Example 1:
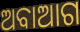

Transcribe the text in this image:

ଅବାଆଗ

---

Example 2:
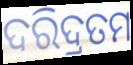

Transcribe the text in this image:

ଦରିଦ୍ରତମ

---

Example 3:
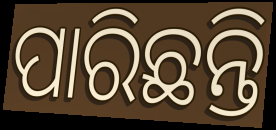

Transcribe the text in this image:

ପାରିଛନ୍ତି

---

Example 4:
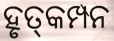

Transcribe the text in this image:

ହୃତ୍‌କମ୍ପନ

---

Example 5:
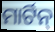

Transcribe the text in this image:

ମାର୍ଟିନ୍